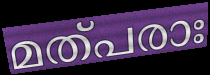
മത്പരാഃ